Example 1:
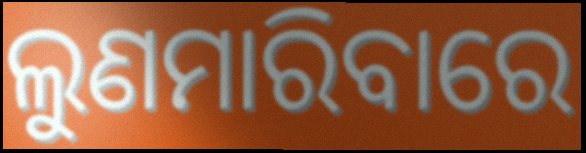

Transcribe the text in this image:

ଲୁଣମାରିବାରେ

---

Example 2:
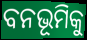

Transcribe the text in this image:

ବନଭୂମିକୁ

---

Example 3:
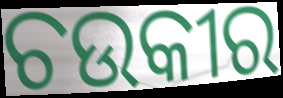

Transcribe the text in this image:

ଚଉକୀର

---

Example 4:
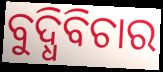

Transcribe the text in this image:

ବୁଦ୍ଧିବିଚାର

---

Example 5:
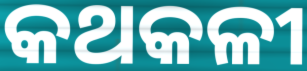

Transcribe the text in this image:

କଥକଳୀ